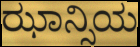
ಝಾನ್ಸಿಯ